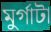
মুর্গাটা